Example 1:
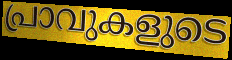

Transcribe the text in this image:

പ്രാവുകളുടെ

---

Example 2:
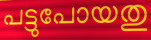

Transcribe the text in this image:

പട്ടുപോയതു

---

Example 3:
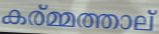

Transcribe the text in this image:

കര്മ്മത്താല്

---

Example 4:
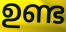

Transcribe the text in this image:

ഉണ്ട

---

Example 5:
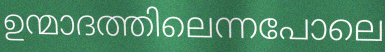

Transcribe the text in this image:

ഉന്മാദത്തിലെന്നപോലെ